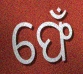
ଫେଁ